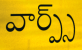
వార్ప్స్